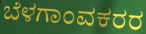
ಬೆಳಗಾಂವಕರರ